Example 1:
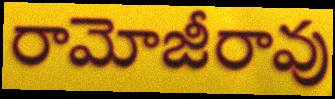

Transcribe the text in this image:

రామోజీరావు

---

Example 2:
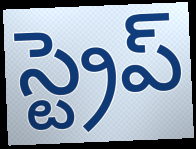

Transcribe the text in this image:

స్ట్రెప్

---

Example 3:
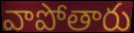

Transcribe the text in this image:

వాపోతారు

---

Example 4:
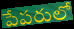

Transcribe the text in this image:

పేపరులో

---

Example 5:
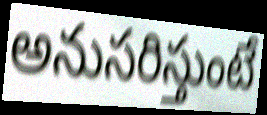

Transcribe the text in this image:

అనుసరిస్తుంటే